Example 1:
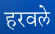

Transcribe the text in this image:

हरवले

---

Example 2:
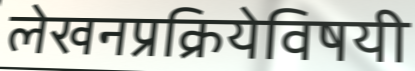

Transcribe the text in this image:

लेखनप्रक्रियेविषयी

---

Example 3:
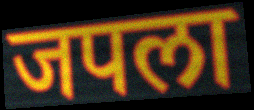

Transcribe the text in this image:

जपला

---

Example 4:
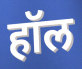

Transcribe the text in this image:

हॉल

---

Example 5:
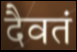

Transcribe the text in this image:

दैवतं